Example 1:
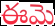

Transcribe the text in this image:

ఈమె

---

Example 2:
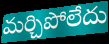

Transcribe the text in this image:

మర్చిపోలేదు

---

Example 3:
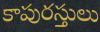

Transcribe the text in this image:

కాపురస్తులు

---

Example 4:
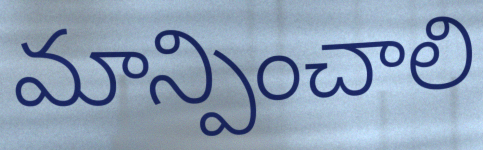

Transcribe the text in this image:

మాన్పించాలి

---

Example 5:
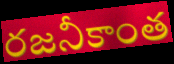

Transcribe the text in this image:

రజనీకాంత